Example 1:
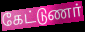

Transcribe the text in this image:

கேட்டுணர்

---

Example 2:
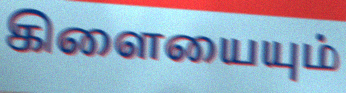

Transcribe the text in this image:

கிளையையும்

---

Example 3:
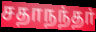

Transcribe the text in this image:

சதாநந்தர்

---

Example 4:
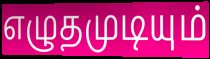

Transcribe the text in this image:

எழுதமுடியும்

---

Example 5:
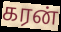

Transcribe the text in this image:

கரன்